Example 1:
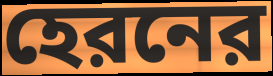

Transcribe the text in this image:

হেরনের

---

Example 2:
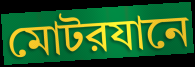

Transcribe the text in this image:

মোটরযানে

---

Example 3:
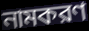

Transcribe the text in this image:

নামকরণ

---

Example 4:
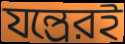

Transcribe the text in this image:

যন্ত্রেরই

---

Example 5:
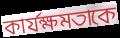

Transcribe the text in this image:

কার্যক্ষমতাকে